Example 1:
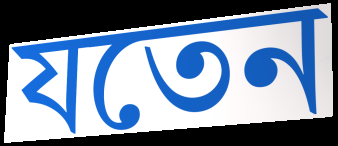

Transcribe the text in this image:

যতেন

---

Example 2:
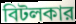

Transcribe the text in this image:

বিটলকার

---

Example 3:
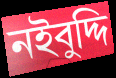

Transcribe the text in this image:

নইবুদ্দি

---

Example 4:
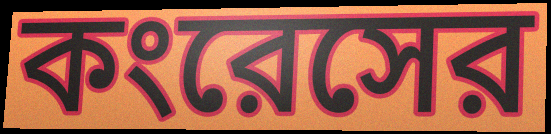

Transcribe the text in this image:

কংরেসের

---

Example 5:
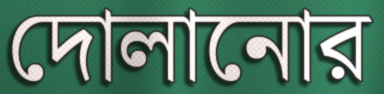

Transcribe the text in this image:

দোলানোর